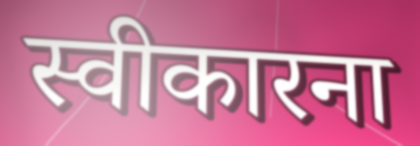
स्वीकारना